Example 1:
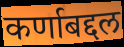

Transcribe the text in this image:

कर्णाबद्दल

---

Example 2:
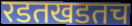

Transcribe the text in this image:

रडतखडतच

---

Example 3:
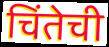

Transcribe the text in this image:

चिंतेची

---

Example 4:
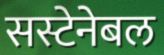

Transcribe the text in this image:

सस्टेनेबल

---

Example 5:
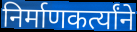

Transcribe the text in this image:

निर्माणकर्त्यांने